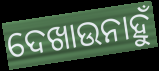
ଦେଖାଉନାହୁଁ